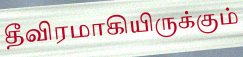
தீவிரமாகியிருக்கும்